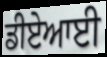
ਡੀਏਆਈ